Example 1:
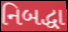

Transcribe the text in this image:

નિબદ્ધા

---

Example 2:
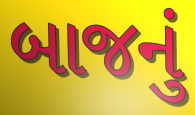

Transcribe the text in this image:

બાજનું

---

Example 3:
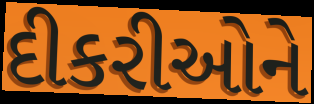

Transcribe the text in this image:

દીકરીઓને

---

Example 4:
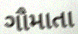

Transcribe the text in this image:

ગૌમાતા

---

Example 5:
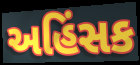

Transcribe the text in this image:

અહિંસક